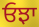
ਓਝਾ